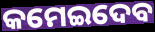
କମେଇଦେବ